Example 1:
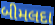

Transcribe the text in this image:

બીમલદા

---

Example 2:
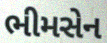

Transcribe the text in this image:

ભીમસેન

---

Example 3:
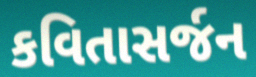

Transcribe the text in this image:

કવિતાસર્જન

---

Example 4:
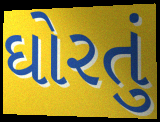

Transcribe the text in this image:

ઘોરતું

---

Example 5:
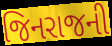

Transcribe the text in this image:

જિનરાજની